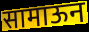
सामाऊन